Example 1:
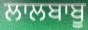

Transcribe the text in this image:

ਲਾਲਬਾਬੂ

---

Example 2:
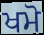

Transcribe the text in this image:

ਖਮੋ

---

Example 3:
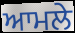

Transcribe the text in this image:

ਆਮਲੇ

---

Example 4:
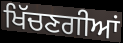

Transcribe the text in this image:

ਖਿੱਚਣਗੀਆਂ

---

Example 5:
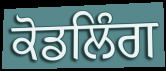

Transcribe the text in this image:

ਕੋਡਲਿੰਗ